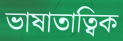
ভাষাতাত্বিক